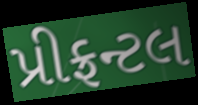
પ્રીફ્રન્ટલ